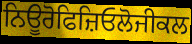
ਨਿਊਰੋਫਿਜ਼ਿਓਲੋਜੀਕਲ